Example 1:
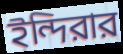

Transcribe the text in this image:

ইন্দিরার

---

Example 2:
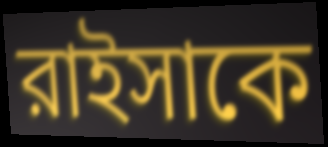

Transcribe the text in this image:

রাইসাকে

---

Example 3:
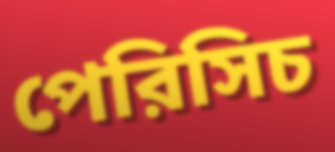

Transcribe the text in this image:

পেরিসিচ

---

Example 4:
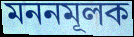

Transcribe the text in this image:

মননমূলক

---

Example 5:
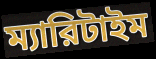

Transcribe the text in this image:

ম্যারিটাইম